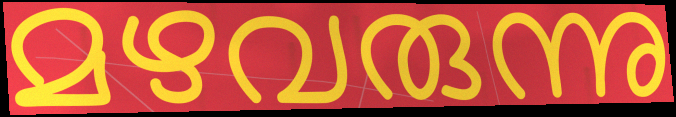
മഴവരുന്നു